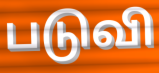
படுவி